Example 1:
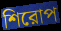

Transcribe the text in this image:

শিরোপ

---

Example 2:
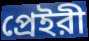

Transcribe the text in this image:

প্রেইরী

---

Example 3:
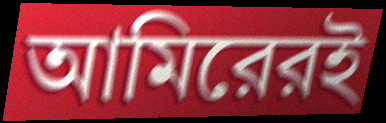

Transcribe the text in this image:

আমিরেরই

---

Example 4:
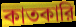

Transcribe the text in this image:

কাতকারি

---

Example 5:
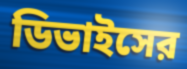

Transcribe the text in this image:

ডিভাইসের